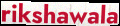
rikshawala